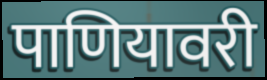
पाणियावरी